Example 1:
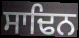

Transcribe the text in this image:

ਸਾਢਿਨ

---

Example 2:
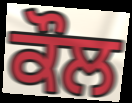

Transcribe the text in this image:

ਕੌਲ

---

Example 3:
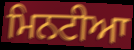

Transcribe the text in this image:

ਮਿਨਟੀਆ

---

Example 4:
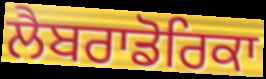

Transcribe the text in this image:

ਲੈਬਰਾਡੋਰਿਕਾ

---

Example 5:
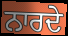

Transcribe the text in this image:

ਨਾਰਦੇ